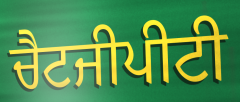
ਚੈਟਜੀਪੀਟੀ